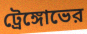
ট্রেঙ্গোভের